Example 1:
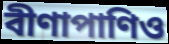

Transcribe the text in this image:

বীণাপাণিও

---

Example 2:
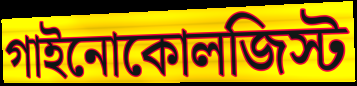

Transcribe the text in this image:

গাইনোকোলজিস্ট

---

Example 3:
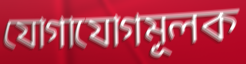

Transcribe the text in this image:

যোগাযোগমূলক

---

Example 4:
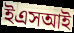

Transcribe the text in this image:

ইএসআই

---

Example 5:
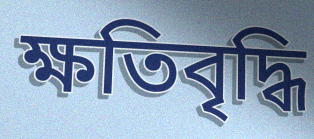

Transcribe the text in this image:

ক্ষতিবৃদ্ধি